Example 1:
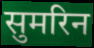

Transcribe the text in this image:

सुमरिन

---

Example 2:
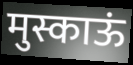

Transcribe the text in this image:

मुस्काऊं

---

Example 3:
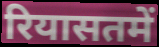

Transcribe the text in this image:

रियासतमें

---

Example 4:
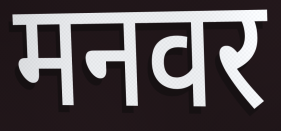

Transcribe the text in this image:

मनवर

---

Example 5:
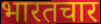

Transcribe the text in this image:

भारतचार